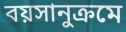
বয়সানুক্রমে